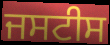
ਜਸਟੀਸ